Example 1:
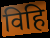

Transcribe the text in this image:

विहि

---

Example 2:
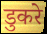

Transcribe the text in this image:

डुकरे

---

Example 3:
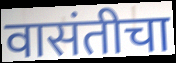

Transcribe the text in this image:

वासंतीचा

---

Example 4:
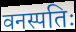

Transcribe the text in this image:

वनस्पतिः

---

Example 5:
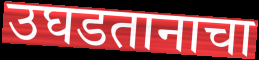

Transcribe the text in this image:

उघडतानाचा